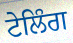
ਟੇਲਿੰਗ